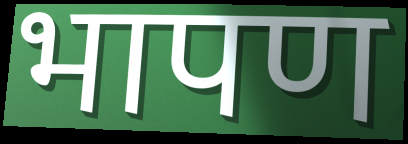
भापण